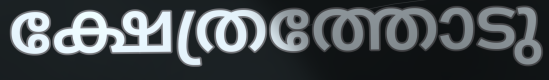
ക്ഷേത്രത്തോടു